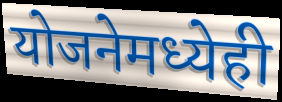
योजनेमध्येही